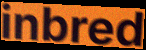
inbred